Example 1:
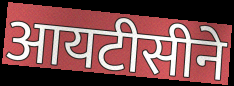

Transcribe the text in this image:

आयटीसीने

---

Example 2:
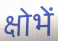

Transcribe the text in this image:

क्षोभें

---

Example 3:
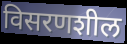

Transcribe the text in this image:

विसरणशील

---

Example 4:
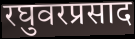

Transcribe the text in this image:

रघुवरप्रसाद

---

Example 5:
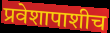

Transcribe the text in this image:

प्रवेशापाशीच